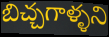
బిచ్చగాళ్ళని